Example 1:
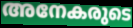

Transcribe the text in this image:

അനേകരുടെ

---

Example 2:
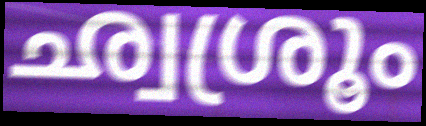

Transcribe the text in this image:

ഛ്വശ്രൂം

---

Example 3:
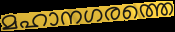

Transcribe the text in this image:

മഹാനഗരത്തെ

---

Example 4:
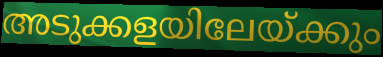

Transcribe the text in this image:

അടുക്കളയിലേയ്ക്കും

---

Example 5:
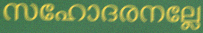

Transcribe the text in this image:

സഹോദരനല്ലേ